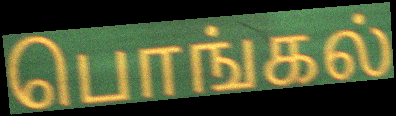
பொங்கல்